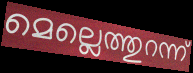
മെല്ലെത്തുറന്ന്